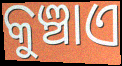
କୁଞ୍ଚାଏ